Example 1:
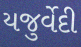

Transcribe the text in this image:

યજુર્વેદી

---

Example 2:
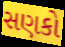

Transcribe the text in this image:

સણકો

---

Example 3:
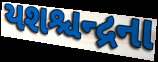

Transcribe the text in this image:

યશશ્ચન્દ્રના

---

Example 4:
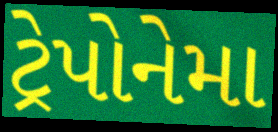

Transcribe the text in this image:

ટ્રેપોનેમા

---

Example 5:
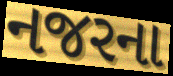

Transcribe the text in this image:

નજરના